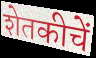
शेतकीचें